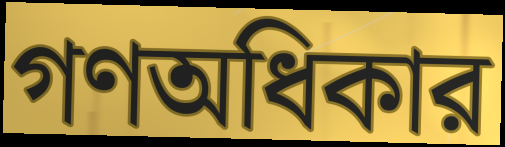
গণঅধিকার